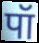
पॉ